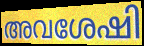
അവശേഷി